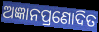
ଅଜ୍ଞାନପ୍ରଣୋଦିତ